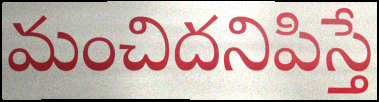
మంచిదనిపిస్తే